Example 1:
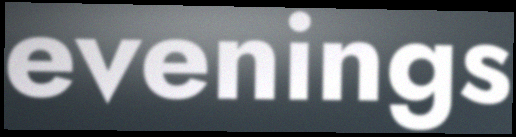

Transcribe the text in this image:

evenings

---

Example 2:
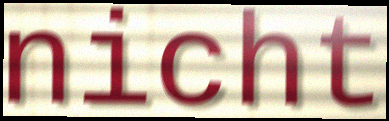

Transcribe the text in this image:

nicht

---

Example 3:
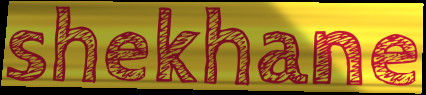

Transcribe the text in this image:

shekhane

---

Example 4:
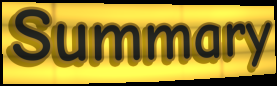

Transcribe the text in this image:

Summary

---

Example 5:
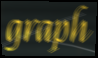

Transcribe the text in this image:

graph